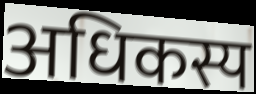
अधिकस्य